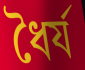
ধৈর্য